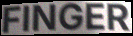
FINGER